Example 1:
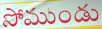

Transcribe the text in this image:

సోముండు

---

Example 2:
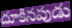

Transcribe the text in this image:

దూకినపుడు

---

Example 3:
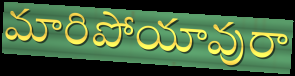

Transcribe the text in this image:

మారిపోయావురా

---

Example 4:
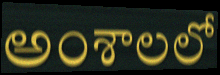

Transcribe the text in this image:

అంశాలలో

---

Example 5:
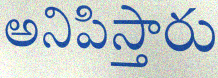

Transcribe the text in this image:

అనిపిస్తారు